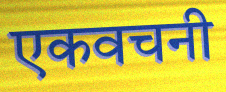
एकवचनी